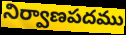
నిర్వాణపదము